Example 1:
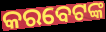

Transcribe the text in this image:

କରବେଟଙ୍କ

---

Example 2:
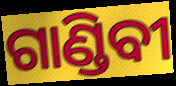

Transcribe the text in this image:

ଗାଣ୍ଡିବୀ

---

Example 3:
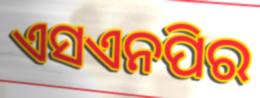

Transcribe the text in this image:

ଏସଏନପିର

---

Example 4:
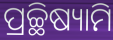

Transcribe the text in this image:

ପ୍ରଚ୍ଛିଷ୍ୟାମି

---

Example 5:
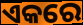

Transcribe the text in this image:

ଏକରେ